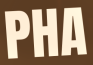
PHA